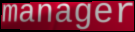
manager